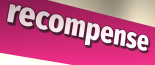
recompense